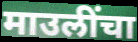
माउलींचा